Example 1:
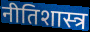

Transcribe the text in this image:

नीतिशास्त्र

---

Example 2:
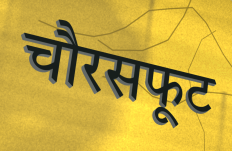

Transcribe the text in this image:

चौरसफूट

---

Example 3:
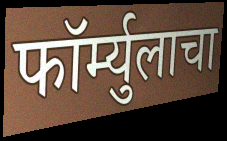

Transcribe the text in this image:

फॉर्म्युलाचा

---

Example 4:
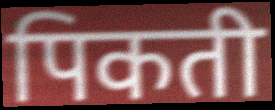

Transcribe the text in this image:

पिकती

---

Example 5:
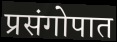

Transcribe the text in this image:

प्रसंगोपात